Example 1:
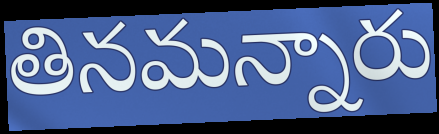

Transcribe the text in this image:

తినమన్నారు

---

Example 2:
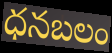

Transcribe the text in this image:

ధనబలం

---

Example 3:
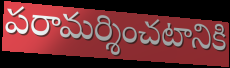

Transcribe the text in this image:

పరామర్శించటానికి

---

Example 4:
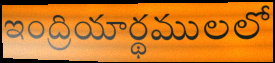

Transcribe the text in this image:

ఇంద్రియార్థములలో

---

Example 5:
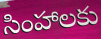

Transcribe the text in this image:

సింహాలకు